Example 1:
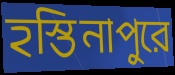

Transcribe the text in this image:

হস্তিনাপুরে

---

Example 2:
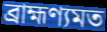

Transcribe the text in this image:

ব্রাহ্মণ্যমত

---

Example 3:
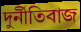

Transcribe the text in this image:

দুর্নীতিবাজ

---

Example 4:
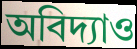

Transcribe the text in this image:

অবিদ্যাও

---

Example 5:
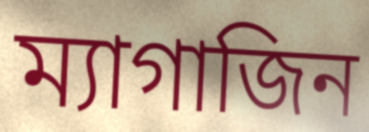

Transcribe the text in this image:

ম্যাগাজিন